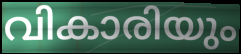
വികാരിയും